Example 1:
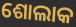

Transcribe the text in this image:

ଶୋଲାକ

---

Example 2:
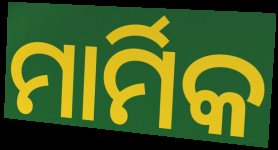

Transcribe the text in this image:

ମାର୍ମିକ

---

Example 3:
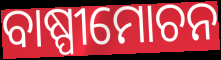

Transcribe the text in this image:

ବାଷ୍ପୀମୋଚନ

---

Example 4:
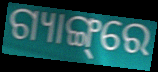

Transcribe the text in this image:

ଗ୍ୟାଙ୍ଗ୍‌ରେ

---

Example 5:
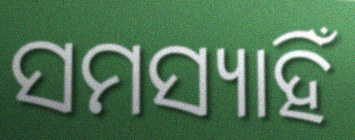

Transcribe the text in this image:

ସମସ୍ୟାହିଁ